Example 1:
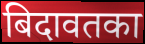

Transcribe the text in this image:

बिदावतका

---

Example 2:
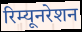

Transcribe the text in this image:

रिम्यूनरेशन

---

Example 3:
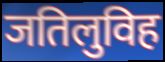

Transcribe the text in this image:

जतिलुविह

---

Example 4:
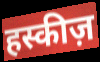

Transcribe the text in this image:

हस्कीज़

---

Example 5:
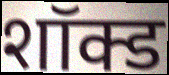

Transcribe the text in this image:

शॉक्ड